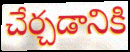
చేర్చడానికి